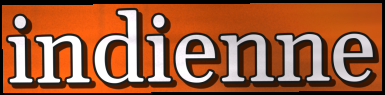
indienne